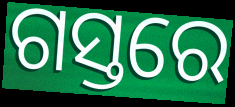
ଗସ୍ତରେ